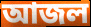
আজল